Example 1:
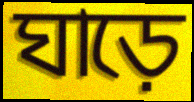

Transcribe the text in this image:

ঘাড়ে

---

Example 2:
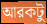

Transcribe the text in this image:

আরকটু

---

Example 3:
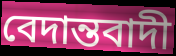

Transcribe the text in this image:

বেদান্তবাদী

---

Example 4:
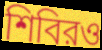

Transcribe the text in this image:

শিবিরও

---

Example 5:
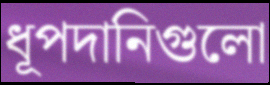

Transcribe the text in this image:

ধূপদানিগুলো